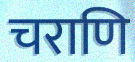
चराणि